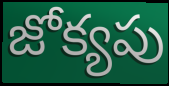
జోక్యపు